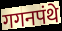
गगनपंथे